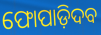
ଫୋପାଡ଼ିଦବ